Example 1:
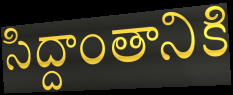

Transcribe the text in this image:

సిద్దాంతానికి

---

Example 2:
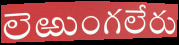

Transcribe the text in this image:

లెఱుంగలేరు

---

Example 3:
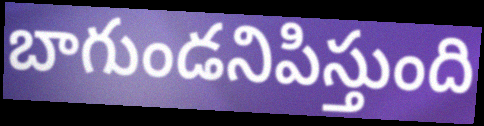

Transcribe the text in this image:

బాగుండనిపిస్తుంది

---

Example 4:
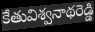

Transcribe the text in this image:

కేతువిశ్వనాథరెడ్డి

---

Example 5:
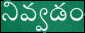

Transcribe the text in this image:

నివ్వడం